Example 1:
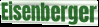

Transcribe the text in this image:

Eisenberger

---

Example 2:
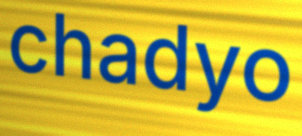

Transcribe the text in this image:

chadyo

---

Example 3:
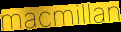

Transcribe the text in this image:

macmillan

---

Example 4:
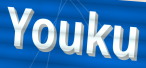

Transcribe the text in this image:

Youku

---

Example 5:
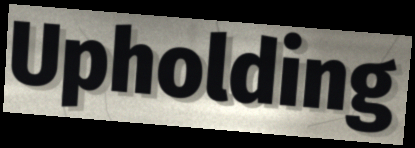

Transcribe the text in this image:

Upholding